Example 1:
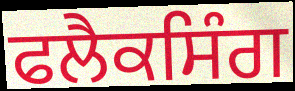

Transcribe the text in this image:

ਫਲੈਕਸਿੰਗ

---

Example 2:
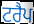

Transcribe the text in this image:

ਟਰੈਪ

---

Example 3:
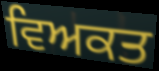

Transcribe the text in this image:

ਵਿਅਕਤ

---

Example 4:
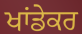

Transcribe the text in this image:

ਖਾਂਡੇਕਰ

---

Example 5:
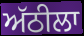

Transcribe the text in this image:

ਅੱਠੀਲਾ